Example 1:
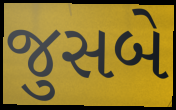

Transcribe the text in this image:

જુસબે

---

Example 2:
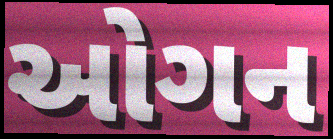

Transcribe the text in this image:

ઓગન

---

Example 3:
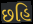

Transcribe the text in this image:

છહિ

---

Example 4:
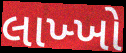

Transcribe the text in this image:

લાખ્ખો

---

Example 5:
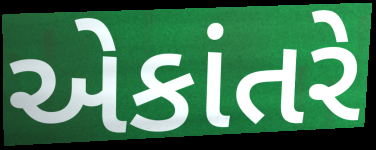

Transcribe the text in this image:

એકાંતરે